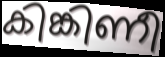
കിങ്കിണീ